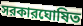
সরকারঘোষিত